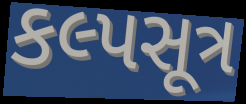
કલ્પસૂત્ર